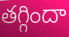
తగ్గిందా